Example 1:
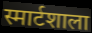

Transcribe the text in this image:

स्मार्टशाला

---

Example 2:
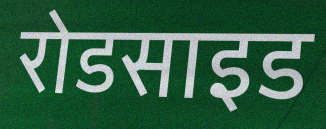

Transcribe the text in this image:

रोडसाइड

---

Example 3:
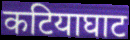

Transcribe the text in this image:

कटियाघाट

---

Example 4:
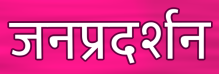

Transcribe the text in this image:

जनप्रदर्शन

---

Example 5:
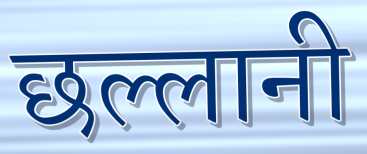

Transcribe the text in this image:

छल्लानी